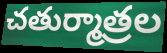
చతుర్మాత్రల